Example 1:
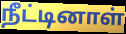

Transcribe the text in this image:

நீட்டினாள்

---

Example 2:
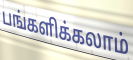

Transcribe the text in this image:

பங்களிக்கலாம்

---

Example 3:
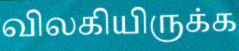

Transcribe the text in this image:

விலகியிருக்க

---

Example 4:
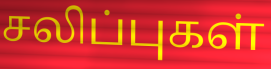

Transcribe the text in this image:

சலிப்புகள்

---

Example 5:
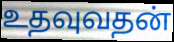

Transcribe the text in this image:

உதவுவதன்